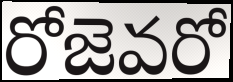
రోజెవరో